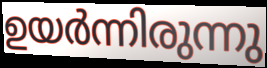
ഉയർന്നിരുന്നു